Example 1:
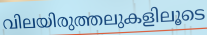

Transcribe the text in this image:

വിലയിരുത്തലുകളിലൂടെ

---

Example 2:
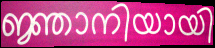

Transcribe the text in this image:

ജ്ഞാനിയായി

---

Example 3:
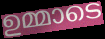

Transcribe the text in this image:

ഉമ്മാടെ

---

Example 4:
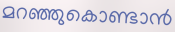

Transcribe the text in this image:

മറഞ്ഞുകൊണ്ടാൻ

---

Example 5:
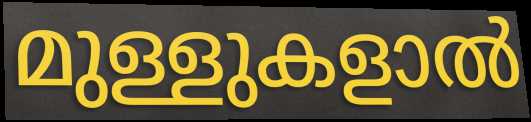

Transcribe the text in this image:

മുള്ളുകളാൽ